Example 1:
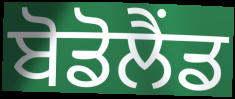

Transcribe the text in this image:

ਬੋਡੋਲੈਂਡ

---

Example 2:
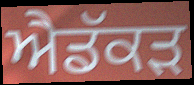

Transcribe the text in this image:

ਐਡੱਕੜ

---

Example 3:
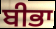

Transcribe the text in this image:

ਬੀਭਾ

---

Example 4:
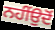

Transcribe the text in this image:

ਨਹੀਂਉਦੋਂ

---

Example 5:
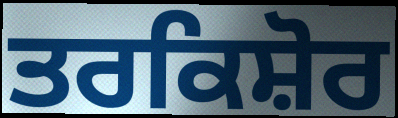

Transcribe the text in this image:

ਤਰਕਿਸ਼ੋਰ